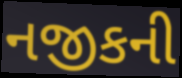
નજીકની